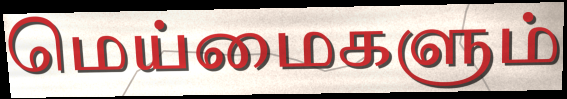
மெய்மைகளும்